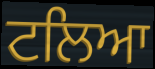
ਟਲਿਆ